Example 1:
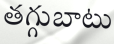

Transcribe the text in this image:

తగ్గుబాటు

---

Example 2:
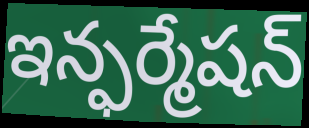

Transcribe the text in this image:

ఇన్ఫర్మేషన్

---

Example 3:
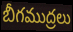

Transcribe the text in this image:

బీగముద్రలు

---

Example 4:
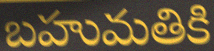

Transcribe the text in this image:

బహుమతికి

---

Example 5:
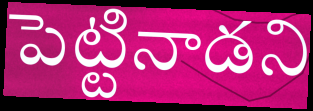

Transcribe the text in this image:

పెట్టినాడని